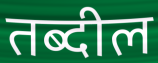
तब्दील